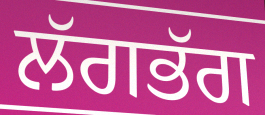
ਲੱਗਭੱਗ